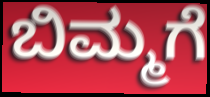
ಬಿಮ್ಮಗೆ